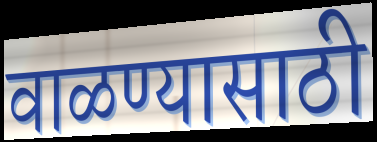
वाळण्यासाठी